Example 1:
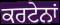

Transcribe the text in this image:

ਕਰਟੇਨਾਂ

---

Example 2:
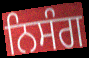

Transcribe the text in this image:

ਨਿਸੰਗ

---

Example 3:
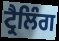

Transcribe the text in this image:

ਟ੍ਰੈਲਿੰਗ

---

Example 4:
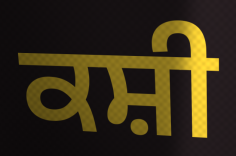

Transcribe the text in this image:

ਕਸ਼ੀ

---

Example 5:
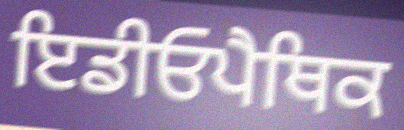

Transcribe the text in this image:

ਇਡੀਓਪੈਥਿਕ